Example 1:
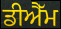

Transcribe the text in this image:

ਡੀਐੱਮ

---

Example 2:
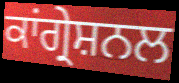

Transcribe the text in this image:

ਕਾਂਗ੍ਰੇਸ਼ਨਲ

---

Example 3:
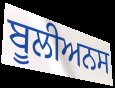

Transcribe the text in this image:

ਬੂਲੀਅਨਸ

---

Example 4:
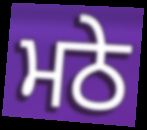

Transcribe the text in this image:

ਮਠੇ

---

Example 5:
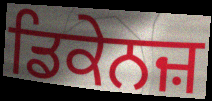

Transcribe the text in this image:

ਡਿਕੇਨਜ਼